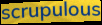
scrupulous